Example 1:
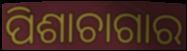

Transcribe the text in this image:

ପିଶାଚାଗାର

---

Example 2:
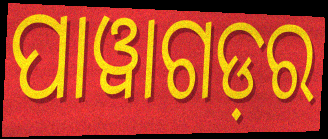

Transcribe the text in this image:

ପାୱାଗଡ଼ର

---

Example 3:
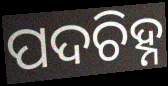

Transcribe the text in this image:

ପଦଚିହ୍ନ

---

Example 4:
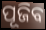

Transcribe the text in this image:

ପୂଜିବ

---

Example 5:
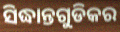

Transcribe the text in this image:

ସିଦ୍ଧାନ୍ତଗୁଡିକର